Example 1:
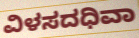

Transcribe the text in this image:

ವಿಳಸದಧಿವಾ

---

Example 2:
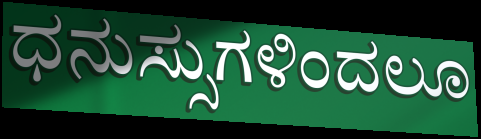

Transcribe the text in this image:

ಧನುಸ್ಸುಗಳಿಂದಲೂ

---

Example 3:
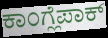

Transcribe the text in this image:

ಕಾಂಗ್ಲೆಪಾಕ್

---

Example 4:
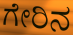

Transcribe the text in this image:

ಗೇರಿನ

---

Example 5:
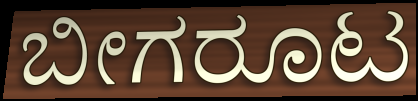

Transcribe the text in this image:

ಬೀಗರೂಟ